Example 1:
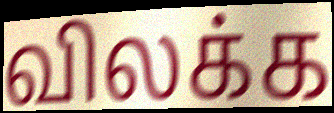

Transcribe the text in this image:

விலக்க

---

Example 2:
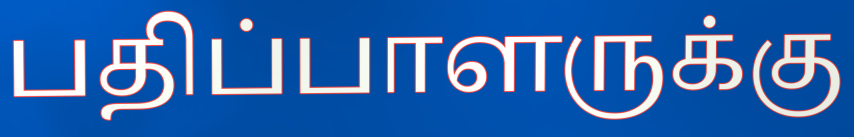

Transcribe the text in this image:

பதிப்பாளருக்கு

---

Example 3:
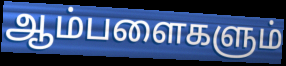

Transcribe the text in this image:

ஆம்பளைகளும்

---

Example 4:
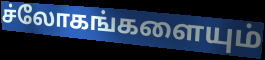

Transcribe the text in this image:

ச்லோகங்களையும்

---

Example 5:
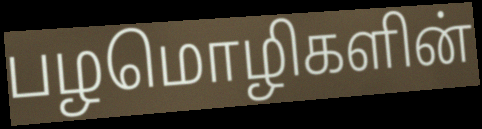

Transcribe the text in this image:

பழமொழிகளின்